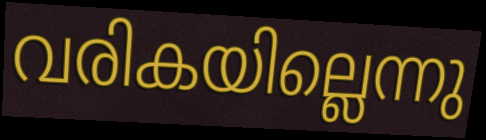
വരികയില്ലെന്നു